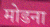
मोडना